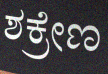
ಶಕ್ರೇಣ